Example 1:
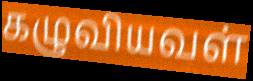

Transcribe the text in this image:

கழுவியவள்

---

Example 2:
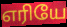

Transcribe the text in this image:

எரியே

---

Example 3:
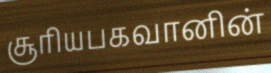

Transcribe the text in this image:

சூரியபகவானின்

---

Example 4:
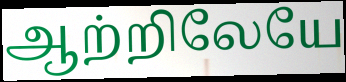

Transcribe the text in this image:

ஆற்றிலேயே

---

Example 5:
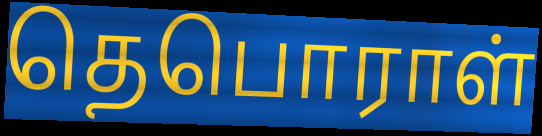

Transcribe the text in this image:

தெபொராள்